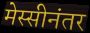
मेस्सीनंतर